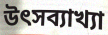
উৎসব্যাখ্যা